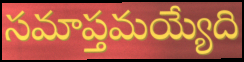
సమాప్తమయ్యేది